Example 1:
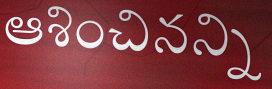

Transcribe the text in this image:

ఆశించినన్ని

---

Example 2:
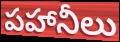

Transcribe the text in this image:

పహానీలు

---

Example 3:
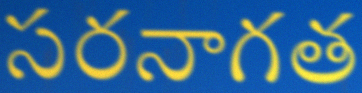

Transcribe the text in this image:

సరనాగత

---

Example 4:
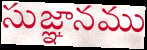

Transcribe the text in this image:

సుజ్ఞానము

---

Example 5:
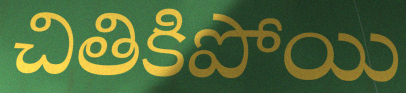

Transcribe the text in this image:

చితికిపోయి